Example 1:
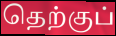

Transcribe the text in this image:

தெற்குப்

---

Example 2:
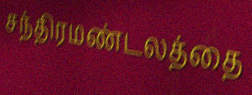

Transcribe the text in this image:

சந்திரமண்டலத்தை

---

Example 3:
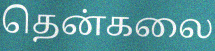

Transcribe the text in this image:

தென்கலை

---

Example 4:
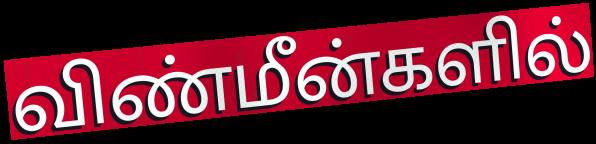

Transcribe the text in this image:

விண்மீன்களில்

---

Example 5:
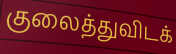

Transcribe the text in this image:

குலைத்துவிடக்